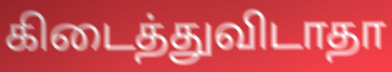
கிடைத்துவிடாதா